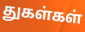
துகள்கள்